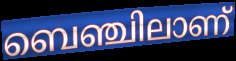
ബെഞ്ചിലാണ്